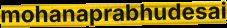
mohanaprabhudesai